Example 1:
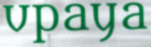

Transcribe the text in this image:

upaya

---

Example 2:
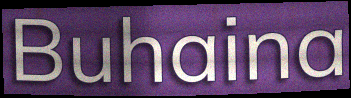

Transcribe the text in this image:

Buhaina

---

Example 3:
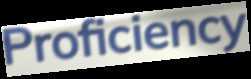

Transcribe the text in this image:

Proficiency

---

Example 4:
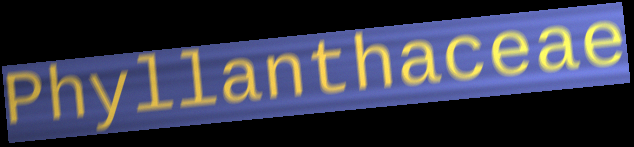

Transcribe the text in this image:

Phyllanthaceae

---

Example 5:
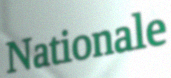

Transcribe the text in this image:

Nationale